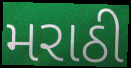
મરાઠી